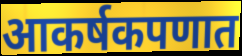
आकर्षकपणात